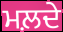
ਮਲ਼ਦੇ